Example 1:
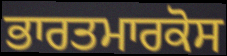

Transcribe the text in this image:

ਭਾਰਤਮਾਰਕੋਸ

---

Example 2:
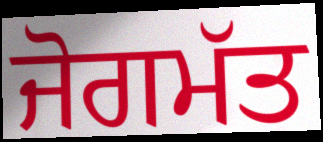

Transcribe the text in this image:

ਜੋਗਮੱਤ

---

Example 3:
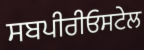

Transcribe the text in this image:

ਸਬਪੀਰੀਓਸਟੇਲ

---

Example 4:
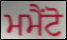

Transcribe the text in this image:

ਮਮੈਂਟੋ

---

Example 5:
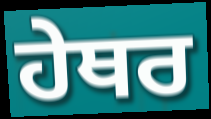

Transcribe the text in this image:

ਹੇਥਰ